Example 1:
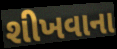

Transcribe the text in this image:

શીખવાના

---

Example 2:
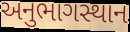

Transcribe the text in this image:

અનુભાગસ્થાન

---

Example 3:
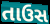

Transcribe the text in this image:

તાઉસ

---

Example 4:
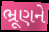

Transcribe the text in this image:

ભ્રૂણને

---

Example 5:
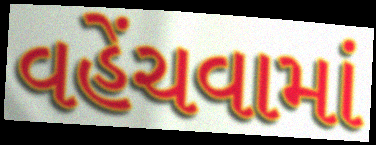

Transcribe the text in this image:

વહેંચવામાં